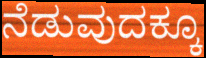
ನೆಡುವುದಕ್ಕೂ